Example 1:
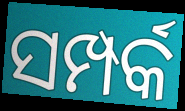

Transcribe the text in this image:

ସମ୍ପର୍କ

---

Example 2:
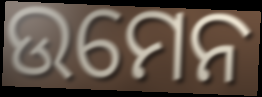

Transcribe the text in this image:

ଉମେନ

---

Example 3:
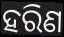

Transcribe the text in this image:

ହରିଣ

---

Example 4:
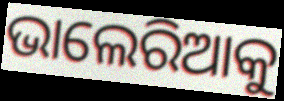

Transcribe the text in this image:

ଭାଲେରିଆକୁ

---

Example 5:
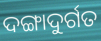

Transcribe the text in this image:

ଦଙ୍ଗାଦୁର୍ଗତ